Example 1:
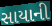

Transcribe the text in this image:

સાયાની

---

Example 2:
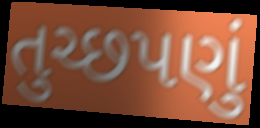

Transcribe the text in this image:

તુચ્છપણું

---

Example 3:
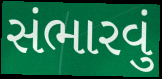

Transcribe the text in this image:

સંભારવું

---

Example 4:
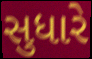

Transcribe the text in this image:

સુધારે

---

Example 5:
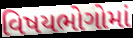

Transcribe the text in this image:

વિષયભોગોમાં